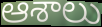
ఆశాలు